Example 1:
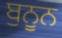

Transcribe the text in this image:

ਬੁਨੂਨ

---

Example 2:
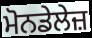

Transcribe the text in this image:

ਮੋਨਡੇਲੇਜ਼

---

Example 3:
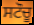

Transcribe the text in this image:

ਸਟੌਚੂ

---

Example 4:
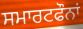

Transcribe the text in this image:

ਸਮਾਰਟਫੌਨਾਂ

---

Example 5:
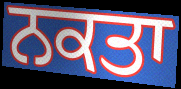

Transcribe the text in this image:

ਨਕਤਾ